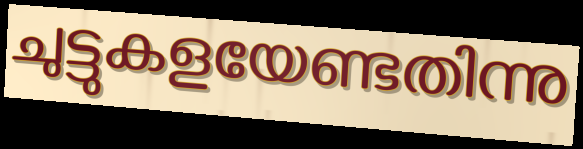
ചുട്ടുകളയേണ്ടതിന്നു